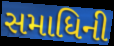
સમાધિની